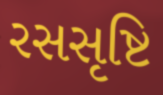
રસસૃષ્ટિ